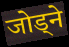
जोड्ने